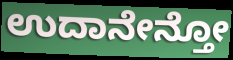
ಉದಾನೇನ್ತೋ